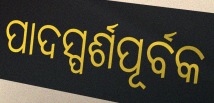
ପାଦସ୍ପର୍ଶପୂର୍ବକ